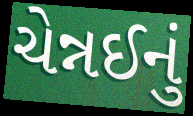
ચેન્નઈનું